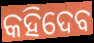
କହିଦେବ